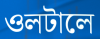
ওলটালে